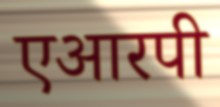
एआरपी